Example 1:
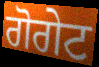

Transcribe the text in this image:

ਗੋਗੇਟ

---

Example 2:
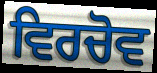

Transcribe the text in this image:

ਵਿਰਚੋਵ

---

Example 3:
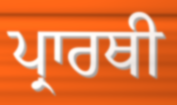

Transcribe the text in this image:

ਪ੍ਰਾਰਥੀ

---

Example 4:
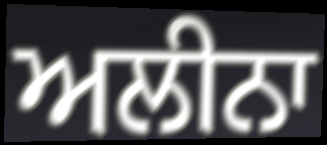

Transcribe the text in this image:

ਅਲੀਨਾ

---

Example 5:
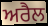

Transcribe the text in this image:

ਅਰੈਲ